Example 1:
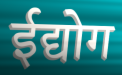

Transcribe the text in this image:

ईद्योग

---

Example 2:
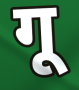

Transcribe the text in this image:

गू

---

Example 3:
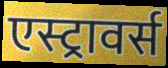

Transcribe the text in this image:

एस्ट्रावर्स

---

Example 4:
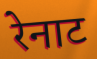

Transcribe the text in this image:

रेनाट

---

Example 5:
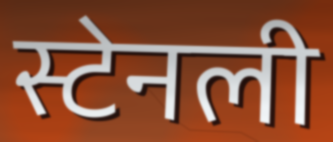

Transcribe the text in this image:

स्‍टेनली